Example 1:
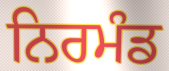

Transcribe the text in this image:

ਨਿਰਮੰਡ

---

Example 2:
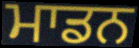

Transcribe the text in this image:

ਮਾਡਨ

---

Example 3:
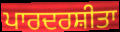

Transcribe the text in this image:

ਪਾਰਦਰਸ਼ੀਤਾ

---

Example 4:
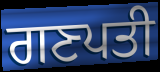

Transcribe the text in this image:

ਗਣਪਤੀ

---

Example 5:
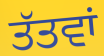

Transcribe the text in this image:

ਤੱਤਵਾਂ